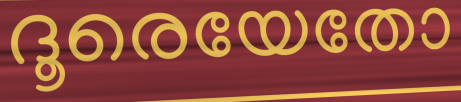
ദൂരെയേതോ